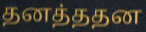
தனத்ததன